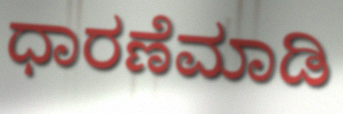
ಧಾರಣೆಮಾಡಿ